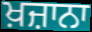
ਖ਼ਜ਼ਾਨਾ